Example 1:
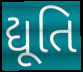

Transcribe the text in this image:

દ્યૂતિ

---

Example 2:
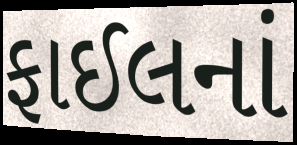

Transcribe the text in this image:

ફાઈલનાં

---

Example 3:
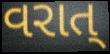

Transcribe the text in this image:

વરાત્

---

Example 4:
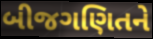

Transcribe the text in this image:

બીજગણિતને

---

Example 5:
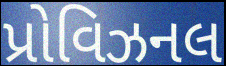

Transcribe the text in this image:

પ્રોવિઝનલ